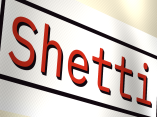
Shetti